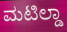
ಮಟಿಲ್ಡಾ